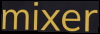
mixer